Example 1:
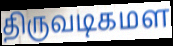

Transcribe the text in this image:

திருவடிகமள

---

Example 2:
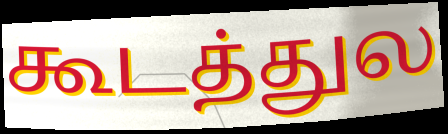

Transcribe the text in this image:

கூடத்துல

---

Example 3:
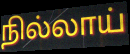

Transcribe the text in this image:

நில்லாய்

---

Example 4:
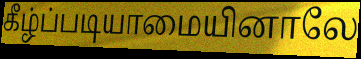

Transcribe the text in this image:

கீழ்ப்படியாமையினாலே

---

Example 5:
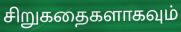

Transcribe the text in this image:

சிறுகதைகளாகவும்